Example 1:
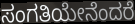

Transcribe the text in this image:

ಸಂಗತಿಯೇನೆಂದರೆ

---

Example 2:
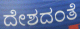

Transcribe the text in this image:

ದೇಶದಂತೆ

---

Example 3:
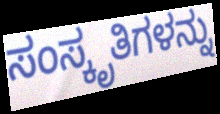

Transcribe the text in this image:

ಸಂಸ್ಕೃತಿಗಳನ್ನು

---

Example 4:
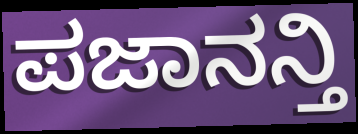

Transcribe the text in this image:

ಪಜಾನನ್ತಿ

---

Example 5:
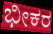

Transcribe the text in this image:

ಭೀಕರ